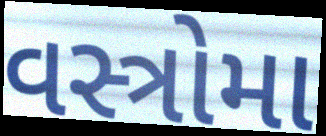
વસ્ત્રોમા